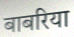
बाबरिया